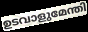
ഉടവാളുമേന്തി